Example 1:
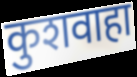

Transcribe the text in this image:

कुशवाहा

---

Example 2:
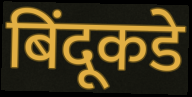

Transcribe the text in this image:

बिंदूकडे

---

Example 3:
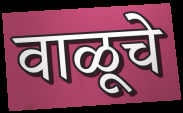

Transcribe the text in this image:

वाळूचे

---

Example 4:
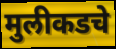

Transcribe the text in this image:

मुलीकडचे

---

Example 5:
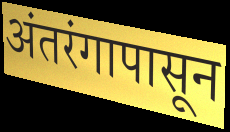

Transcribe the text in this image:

अंतरंगापासून